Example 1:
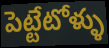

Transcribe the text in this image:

పెట్టేటోళ్ళు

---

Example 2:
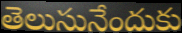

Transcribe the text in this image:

తెలుసునేందుకు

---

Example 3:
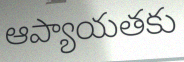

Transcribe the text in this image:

ఆప్యాయతకు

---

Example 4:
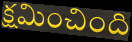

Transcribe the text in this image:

క్షమించింది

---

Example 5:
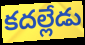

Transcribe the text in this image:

కదల్లేడు